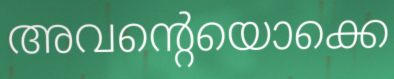
അവന്റെയൊക്കെ